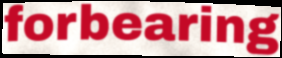
forbearing